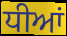
ਧੀਆਂ